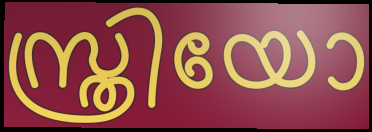
സ്ത്രിയോ